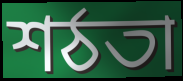
শঠতা